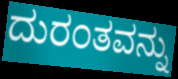
ದುರಂತವನ್ನು